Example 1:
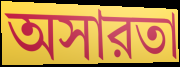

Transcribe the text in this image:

অসারতা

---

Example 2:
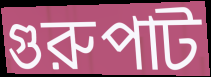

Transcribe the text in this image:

গুরুপাট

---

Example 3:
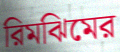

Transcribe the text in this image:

রিমঝিমের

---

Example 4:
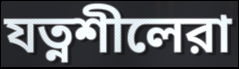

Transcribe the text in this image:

যত্নশীলেরা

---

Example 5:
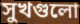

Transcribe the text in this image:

সুখগুলো